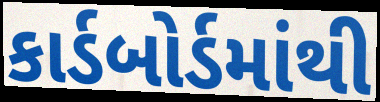
કાર્ડબોર્ડમાંથી